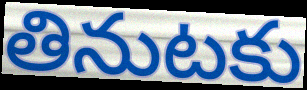
తినుటకు